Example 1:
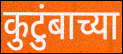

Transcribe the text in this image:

कुटुंबाच्या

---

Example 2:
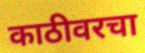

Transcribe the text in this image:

काठीवरचा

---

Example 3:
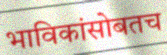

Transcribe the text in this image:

भाविकांसोबतच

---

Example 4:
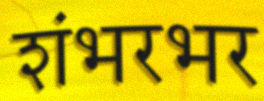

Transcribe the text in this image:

शंभरभर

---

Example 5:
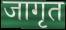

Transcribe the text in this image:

जागृत